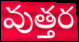
వుత్తర